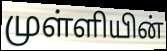
முள்ளியின்